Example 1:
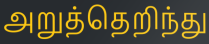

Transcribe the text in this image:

அறுத்தெறிந்து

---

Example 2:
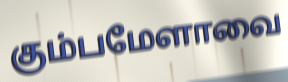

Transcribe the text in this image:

கும்பமேளாவை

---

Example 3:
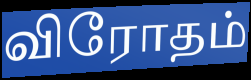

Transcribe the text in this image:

விரோதம்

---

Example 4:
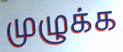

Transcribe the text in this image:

முழுக்க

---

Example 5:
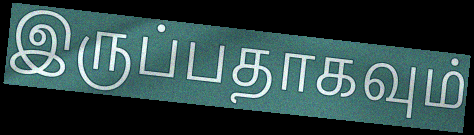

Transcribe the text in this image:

இருப்பதாகவும்